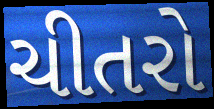
ચીતરો